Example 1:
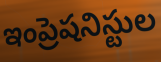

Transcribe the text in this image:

ఇంప్రెషనిస్టుల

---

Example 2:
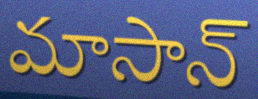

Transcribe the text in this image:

మాసాన్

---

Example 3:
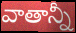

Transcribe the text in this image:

వాతాన్నీ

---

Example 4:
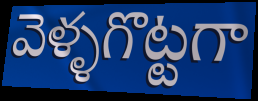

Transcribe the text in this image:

వెళ్ళగొట్టగా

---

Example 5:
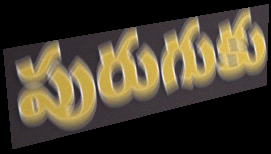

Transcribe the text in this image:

పురుగుకు